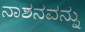
ನಾಶನವನ್ನು